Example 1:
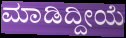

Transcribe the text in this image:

ಮಾಡಿದ್ದೀಯೆ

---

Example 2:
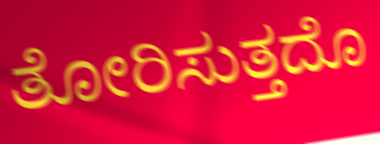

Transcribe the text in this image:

ತೋರಿಸುತ್ತದೊ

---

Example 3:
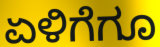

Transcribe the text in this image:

ಏಳಿಗೆಗೂ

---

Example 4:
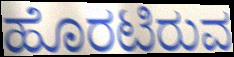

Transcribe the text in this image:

ಹೊರಟಿರುವ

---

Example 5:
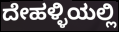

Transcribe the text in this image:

ದೇಹಳ್ಳಿಯಲ್ಲಿ